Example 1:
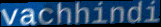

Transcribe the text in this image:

vachhindi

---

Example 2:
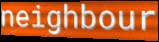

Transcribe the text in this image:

neighbour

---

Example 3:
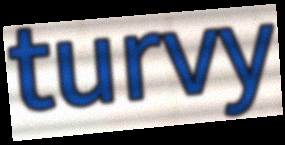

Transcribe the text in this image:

turvy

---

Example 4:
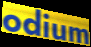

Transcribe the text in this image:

odium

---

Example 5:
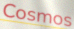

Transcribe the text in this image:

Cosmos